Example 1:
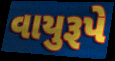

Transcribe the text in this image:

વાયુરૂપે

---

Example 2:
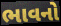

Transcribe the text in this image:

ભાવનો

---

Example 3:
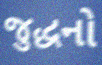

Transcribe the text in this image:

જુદ્ધનો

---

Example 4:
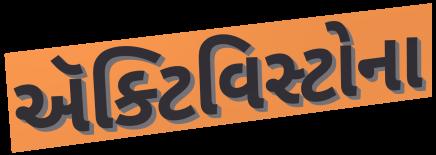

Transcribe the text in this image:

ઍક્ટિવિસ્ટોના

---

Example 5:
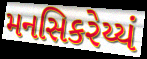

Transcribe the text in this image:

મનસિકરેય્યં